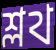
শ্লথ